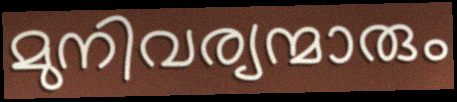
മുനിവര്യന്മാരും